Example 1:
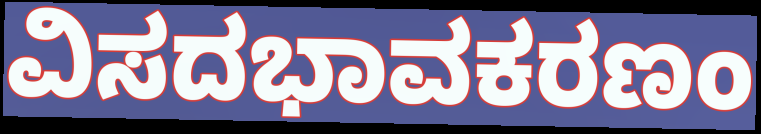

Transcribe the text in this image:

ವಿಸದಭಾವಕರಣಂ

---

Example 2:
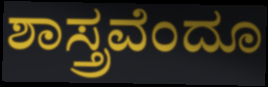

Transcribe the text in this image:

ಶಾಸ್ತ್ರವೆಂದೂ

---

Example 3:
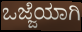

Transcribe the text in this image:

ಒಜ್ಜೆಯಾಗಿ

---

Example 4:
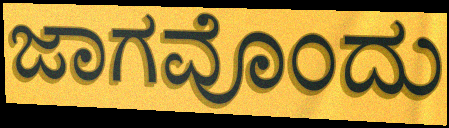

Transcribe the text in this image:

ಜಾಗವೊಂದು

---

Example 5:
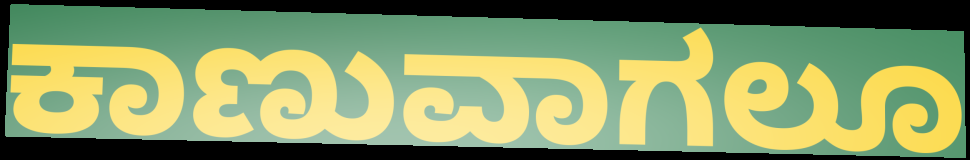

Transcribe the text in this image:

ಕಾಣುವಾಗಲೂ